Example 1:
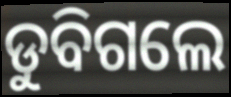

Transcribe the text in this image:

ଡୁବିଗଲେ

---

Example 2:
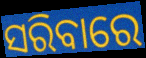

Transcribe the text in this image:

ସରିବାରେ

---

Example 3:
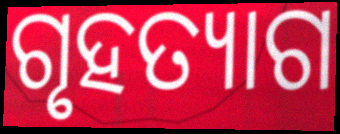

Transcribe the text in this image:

ଗୃହତ୍ୟାଗ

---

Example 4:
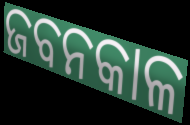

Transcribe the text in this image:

ଜବନକାଳ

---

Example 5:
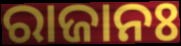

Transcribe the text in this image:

ରାଜାନଃ